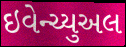
ઇવેન્ચ્યુઅલ